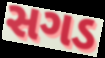
સગડ